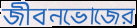
জীবনভোজের